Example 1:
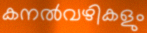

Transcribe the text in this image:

കനൽവഴികളും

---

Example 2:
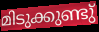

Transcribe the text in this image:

മിടുക്കുണ്ടു്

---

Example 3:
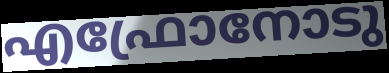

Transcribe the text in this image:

എഫ്രോനോടു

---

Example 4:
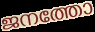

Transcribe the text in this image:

ജനത്തോ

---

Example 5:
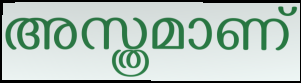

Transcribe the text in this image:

അസ്ത്രമാണ്